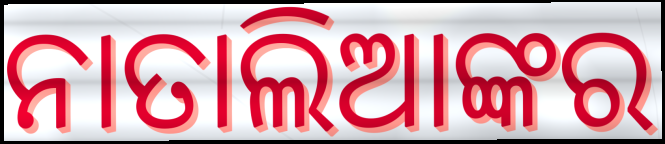
ନାତାଲିଆଙ୍କର